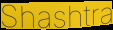
Shashtra